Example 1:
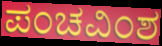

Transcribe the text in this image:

ಪಂಚವಿಂಶ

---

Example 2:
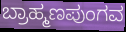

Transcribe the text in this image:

ಬ್ರಾಹ್ಮಣಪುಂಗವ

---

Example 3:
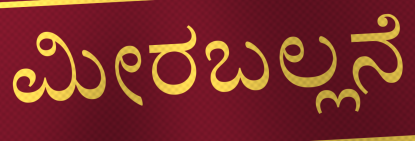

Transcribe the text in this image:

ಮೀರಬಲ್ಲನೆ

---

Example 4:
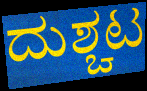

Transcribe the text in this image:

ದುಶ್ಚಟ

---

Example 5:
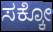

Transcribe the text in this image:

ಸಕ್ಕೋ